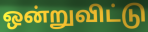
ஒன்றுவிட்டு